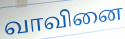
வாவினை